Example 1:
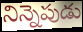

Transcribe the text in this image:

నిన్నెపుడు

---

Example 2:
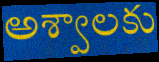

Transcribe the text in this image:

అశ్వాలకు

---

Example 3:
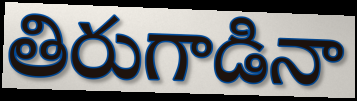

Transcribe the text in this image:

తిరుగాడినా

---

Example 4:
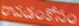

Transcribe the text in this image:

రావడంకోసం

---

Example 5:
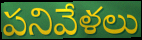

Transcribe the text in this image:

పనివేళలు